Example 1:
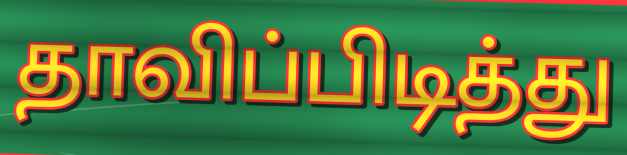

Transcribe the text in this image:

தாவிப்பிடித்து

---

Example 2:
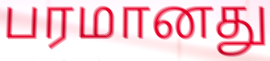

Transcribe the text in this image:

பரமானது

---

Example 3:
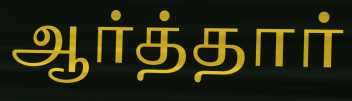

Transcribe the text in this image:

ஆர்த்தார்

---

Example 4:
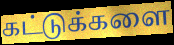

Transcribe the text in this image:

கட்டுக்களை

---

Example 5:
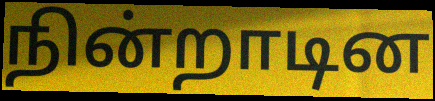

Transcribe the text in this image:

நின்றாடின